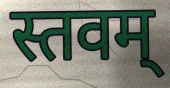
स्तवम्